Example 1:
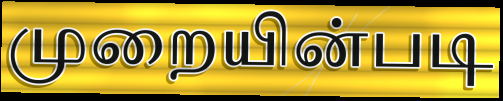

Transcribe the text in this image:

முறையின்படி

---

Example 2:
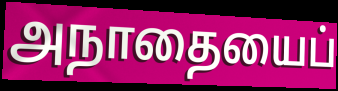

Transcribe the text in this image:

அநாதையைப்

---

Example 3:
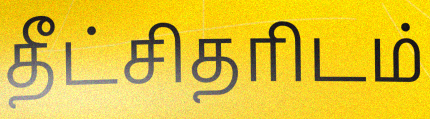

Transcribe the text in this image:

தீட்சிதரிடம்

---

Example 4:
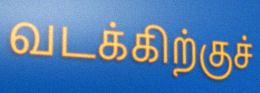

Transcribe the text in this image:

வடக்கிற்குச்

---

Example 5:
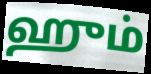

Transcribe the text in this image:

ஹும்